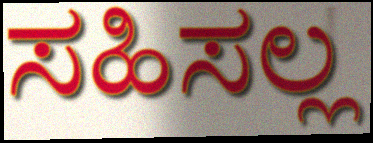
ಸಹಿಸಲ್ಲ